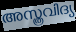
അസ്ത്രവിദ്യ